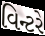
વિન્ટરે